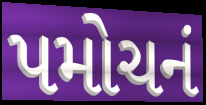
પમોચનં